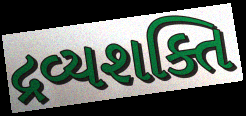
દ્રવ્યશક્તિ